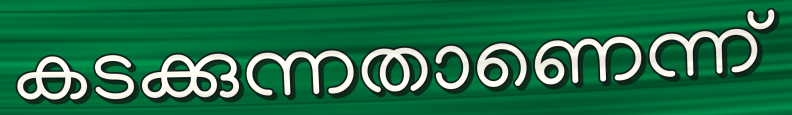
കടക്കുന്നതാണെന്ന്